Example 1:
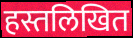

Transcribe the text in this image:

हस्तलिखित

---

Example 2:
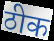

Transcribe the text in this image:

ठीक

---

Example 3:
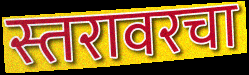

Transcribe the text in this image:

स्तरावरचा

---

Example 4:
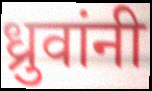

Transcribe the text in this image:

ध्रुवांनी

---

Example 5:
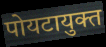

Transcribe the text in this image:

पोयटायुक्त